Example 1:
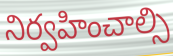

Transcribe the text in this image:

నిర్వహించాల్సి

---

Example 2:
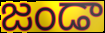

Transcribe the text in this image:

జండా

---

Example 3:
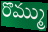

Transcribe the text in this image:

రొమ్ము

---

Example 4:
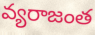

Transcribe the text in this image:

వ్యరాజంత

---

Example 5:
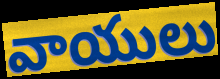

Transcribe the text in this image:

వాయులు